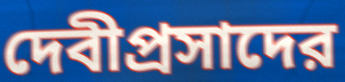
দেবীপ্রসাদের